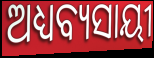
ଅଧ୍ୟବ୍ୟସାୟୀ